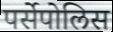
पर्सेपोलिस